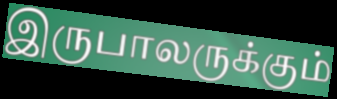
இருபாலருக்கும்